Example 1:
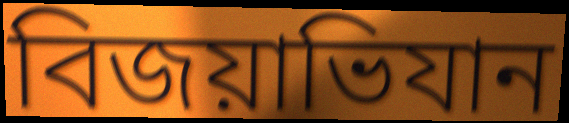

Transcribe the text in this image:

বিজয়াভিযান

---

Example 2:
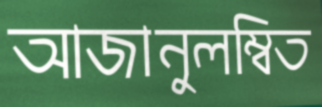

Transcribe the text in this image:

আজানুলম্বিত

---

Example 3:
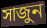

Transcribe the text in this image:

সাজুন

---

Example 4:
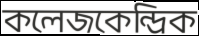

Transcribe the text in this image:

কলেজকেন্দ্রিক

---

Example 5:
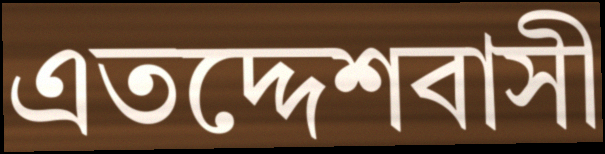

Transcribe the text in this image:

এতদ্দেশবাসী